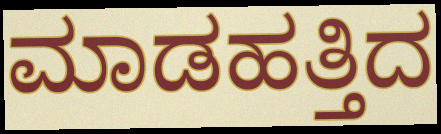
ಮಾಡಹತ್ತಿದ